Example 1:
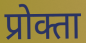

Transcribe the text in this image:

प्रोक्ता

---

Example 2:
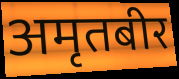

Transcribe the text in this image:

अमृतबीर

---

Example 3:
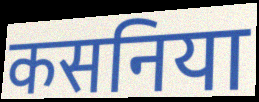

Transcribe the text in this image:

कसनिया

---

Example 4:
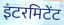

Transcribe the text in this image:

इंटरमिटेंट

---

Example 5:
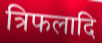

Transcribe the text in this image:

त्रिफलादि